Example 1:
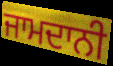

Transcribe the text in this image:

ਜਾਮਦਾਨੀ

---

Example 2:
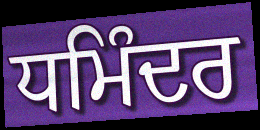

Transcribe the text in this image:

ਧਮਿੰਦਰ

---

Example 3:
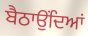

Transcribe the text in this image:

ਬੈਠਾਉਂਦਿਆਂ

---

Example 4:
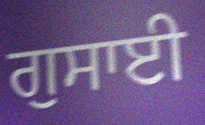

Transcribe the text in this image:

ਗੁਸਾਈ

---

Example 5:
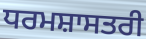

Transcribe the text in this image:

ਧਰਮਸ਼ਾਸਤਰੀ